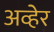
अव्हेर